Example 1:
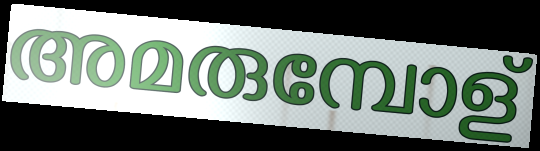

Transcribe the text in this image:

അമരുമ്പോള്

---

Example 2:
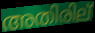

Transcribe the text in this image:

അതിരില്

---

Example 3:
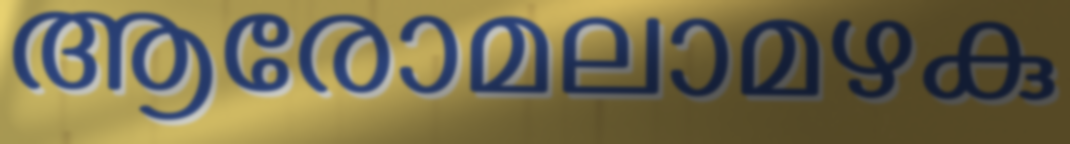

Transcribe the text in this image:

ആരോമലാമഴകു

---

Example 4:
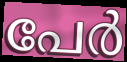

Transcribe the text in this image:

പേർ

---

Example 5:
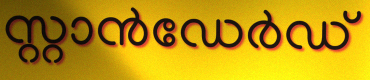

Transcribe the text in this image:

സ്റ്റാൻഡേർഡ്